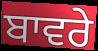
ਬਾਵਰੇ